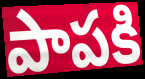
పాపకి